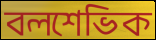
বলশেভিক